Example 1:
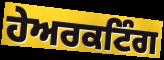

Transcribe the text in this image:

ਹੇਅਰਕਟਿੰਗ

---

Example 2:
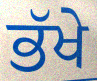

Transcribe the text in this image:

ਭੱਖੇ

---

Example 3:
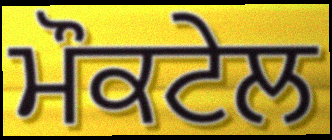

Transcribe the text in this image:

ਮੌਕਟੇਲ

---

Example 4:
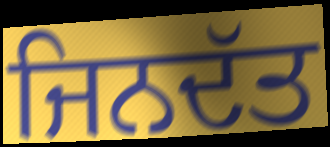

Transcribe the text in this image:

ਜਿਨਦੱਤ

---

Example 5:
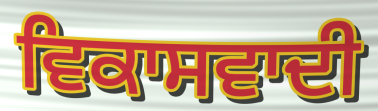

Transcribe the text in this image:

ਵਿਕਾਸਵਾਦੀ